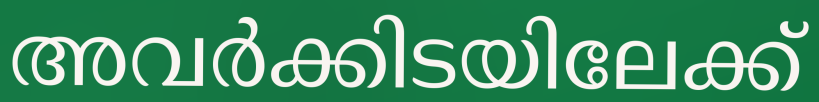
അവർക്കിടയിലേക്ക്